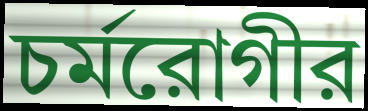
চর্মরোগীর